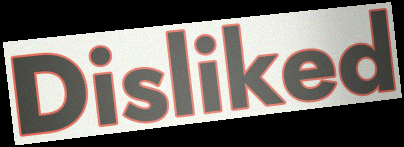
Disliked